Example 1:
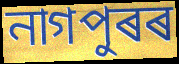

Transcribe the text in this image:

নাগপুৰৰ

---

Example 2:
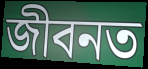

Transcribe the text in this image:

জীবনত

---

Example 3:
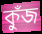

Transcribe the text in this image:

কুঁজ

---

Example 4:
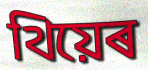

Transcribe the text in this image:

থিয়েৰ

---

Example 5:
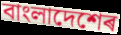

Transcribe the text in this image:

বাংলাদেশেৰ